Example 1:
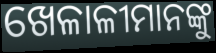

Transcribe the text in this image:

ଖେଳାଳୀମାନଙ୍କୁ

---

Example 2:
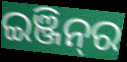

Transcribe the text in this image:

ଇଞ୍ଜିନ୍‍ର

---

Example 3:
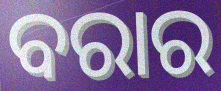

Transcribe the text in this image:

ବରାର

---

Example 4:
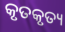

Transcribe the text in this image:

କୃତକୃତ୍ୟ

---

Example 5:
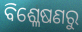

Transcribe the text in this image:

ବିଶ୍ଳେଷଣରୁ